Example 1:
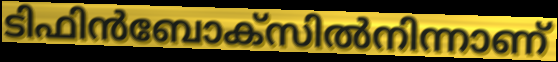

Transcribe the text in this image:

ടിഫിൻബോക്സിൽനിന്നാണ്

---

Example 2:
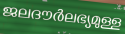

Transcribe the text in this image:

ജലദൗർലഭ്യമുള്ള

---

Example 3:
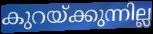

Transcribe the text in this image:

കുറയ്ക്കുന്നില്ല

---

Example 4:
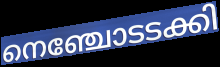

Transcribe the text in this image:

നെഞ്ചോടടക്കി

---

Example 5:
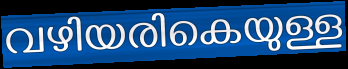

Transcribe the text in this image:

വഴിയരികെയുള്ള